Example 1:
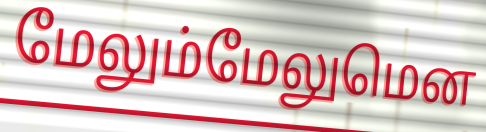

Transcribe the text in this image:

மேலும்மேலுமென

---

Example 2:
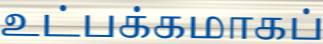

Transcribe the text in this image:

உட்பக்கமாகப்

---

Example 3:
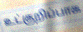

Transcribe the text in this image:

உட்குறிப்பாக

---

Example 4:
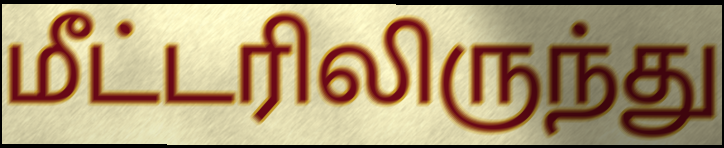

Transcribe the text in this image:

மீட்டரிலிருந்து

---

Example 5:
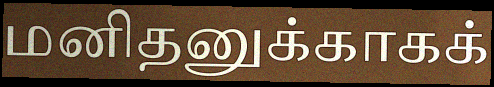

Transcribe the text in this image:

மனிதனுக்காகக்